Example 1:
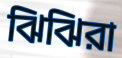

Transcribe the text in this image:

ঝিঝিরা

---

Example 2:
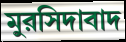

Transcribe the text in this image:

মুরসিদাবাদ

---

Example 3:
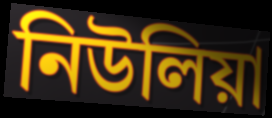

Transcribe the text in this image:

নিউলিয়া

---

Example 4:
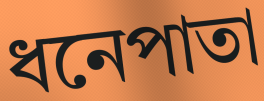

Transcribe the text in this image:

ধনেপাতা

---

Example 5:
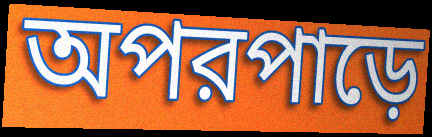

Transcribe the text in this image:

অপরপাড়ে